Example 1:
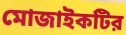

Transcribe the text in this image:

মোজাইকটির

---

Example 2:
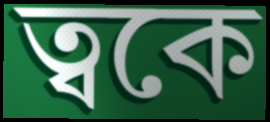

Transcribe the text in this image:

ত্বকে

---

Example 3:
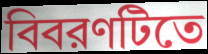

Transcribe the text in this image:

বিবরণটিতে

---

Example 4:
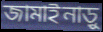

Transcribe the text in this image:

জামাইনাড়ু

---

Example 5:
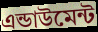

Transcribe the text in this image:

এন্ডাউমেন্ট